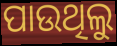
ପାଉଥିଲୁ